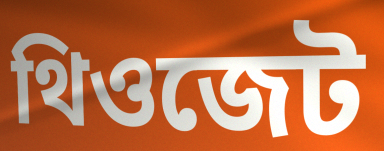
থিওজেট